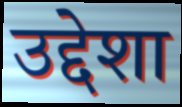
उद्देशा